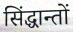
सिंद्धान्तों